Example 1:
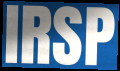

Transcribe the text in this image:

IRSP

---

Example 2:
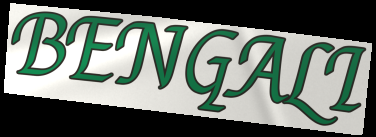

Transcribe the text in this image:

BENGALI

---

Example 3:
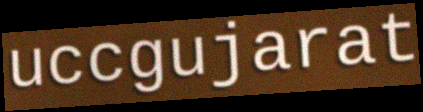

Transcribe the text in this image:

uccgujarat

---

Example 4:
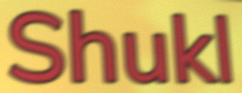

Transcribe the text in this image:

Shukl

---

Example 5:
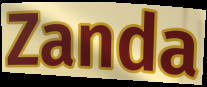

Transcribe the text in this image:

Zanda